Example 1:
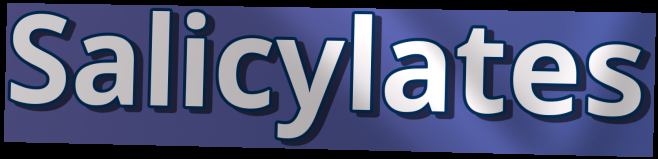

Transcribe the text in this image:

Salicylates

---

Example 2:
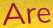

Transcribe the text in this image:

Are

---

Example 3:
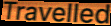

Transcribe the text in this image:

Travelled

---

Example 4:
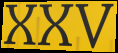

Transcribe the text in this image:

XXV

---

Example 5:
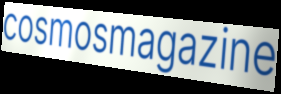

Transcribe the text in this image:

cosmosmagazine